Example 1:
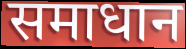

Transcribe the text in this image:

समाधान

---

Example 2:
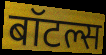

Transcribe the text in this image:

बॉटल्स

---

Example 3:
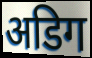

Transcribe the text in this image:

अडिग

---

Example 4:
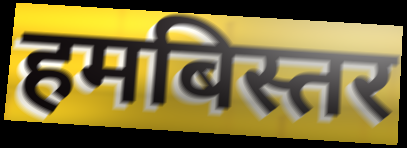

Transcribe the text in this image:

हमबिस्तर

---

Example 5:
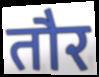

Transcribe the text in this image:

तौर